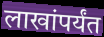
लाखांपर्यंत